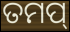
ତମପ୍